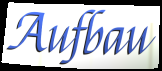
Aufbau